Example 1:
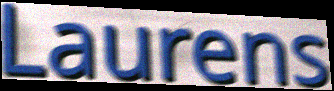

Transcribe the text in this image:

Laurens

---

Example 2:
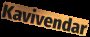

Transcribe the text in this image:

Kavivendar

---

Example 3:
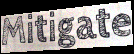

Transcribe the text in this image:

Mitigate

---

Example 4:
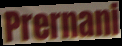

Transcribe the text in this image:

Prernani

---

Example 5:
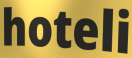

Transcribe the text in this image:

hoteli